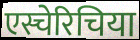
एस्चेरिचिया